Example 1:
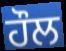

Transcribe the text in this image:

ਹੌਲ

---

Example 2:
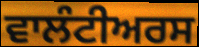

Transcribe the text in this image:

ਵਾਲੰਟੀਅਰਸ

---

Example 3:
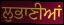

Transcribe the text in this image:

ਲੁਭਾਣੀਆਂ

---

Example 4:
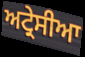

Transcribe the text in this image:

ਅਟ੍ਰੇਸੀਆ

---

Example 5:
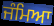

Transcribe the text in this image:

ਜੰਮਿਆ